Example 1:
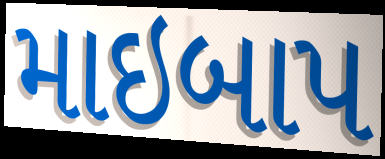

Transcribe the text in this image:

માઇબાપ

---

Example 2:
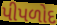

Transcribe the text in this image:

પીપળોદ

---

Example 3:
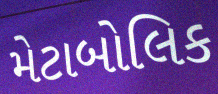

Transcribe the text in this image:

મેટાબોલિક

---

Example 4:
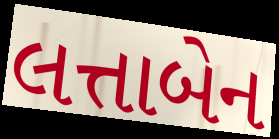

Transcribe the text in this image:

લત્તાબેન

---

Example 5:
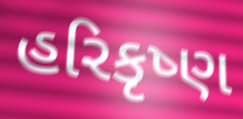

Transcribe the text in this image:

હરિકૃષ્ણ